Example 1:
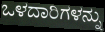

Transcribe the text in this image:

ಒಳದಾರಿಗಳನ್ನು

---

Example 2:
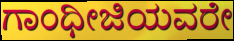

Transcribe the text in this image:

ಗಾಂಧೀಜಿಯವರೇ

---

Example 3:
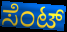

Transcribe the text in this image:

ಸೆಂಟ್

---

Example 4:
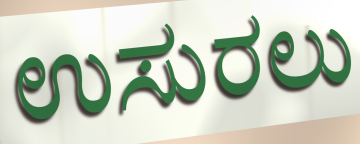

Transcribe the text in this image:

ಉಸುರಲು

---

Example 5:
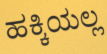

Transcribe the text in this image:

ಹಕ್ಕಿಯಲ್ಲ